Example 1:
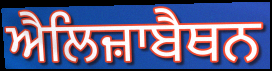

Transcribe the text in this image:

ਐਲਿਜ਼ਾਬੈਥਨ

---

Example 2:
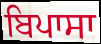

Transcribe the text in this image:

ਬਿਪਾਸਾ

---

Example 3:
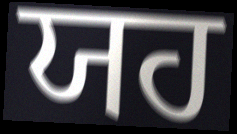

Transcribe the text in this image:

ਯਹ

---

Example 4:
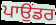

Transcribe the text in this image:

ਪਾਉਂਡਰ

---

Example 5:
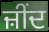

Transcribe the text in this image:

ਜ਼ੀਂਦ